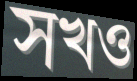
সখও